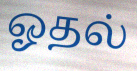
ஓதல்